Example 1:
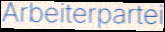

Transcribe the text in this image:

Arbeiterpartei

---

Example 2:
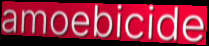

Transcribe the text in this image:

amoebicide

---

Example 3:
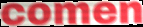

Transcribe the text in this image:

comen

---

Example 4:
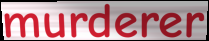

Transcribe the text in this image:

murderer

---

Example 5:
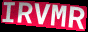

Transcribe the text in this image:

IRVMR